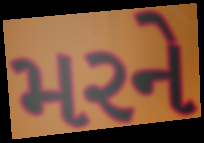
મરને